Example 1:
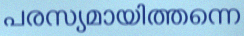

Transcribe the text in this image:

പരസ്യമായിത്തന്നെ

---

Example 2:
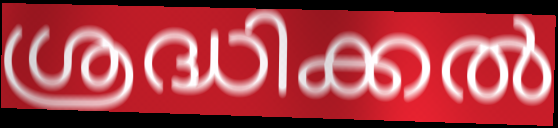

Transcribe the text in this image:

ശ്രദ്ധിക്കൽ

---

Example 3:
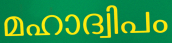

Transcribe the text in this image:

മഹാദ്വിപം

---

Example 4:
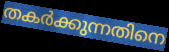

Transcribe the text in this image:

തകർക്കുന്നതിനെ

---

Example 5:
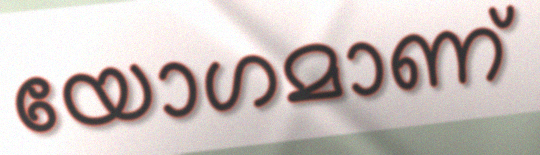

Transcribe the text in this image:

യോഗമാണ്